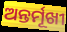
ଅନ୍ତର୍ମୂଖୀ